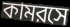
কামরসে